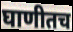
घाणीतच